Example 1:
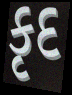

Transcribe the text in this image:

કૃદ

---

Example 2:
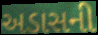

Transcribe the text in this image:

અડાસની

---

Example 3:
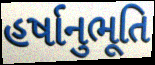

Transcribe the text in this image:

હર્ષાનુભૂતિ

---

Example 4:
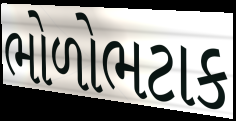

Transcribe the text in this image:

ભોળોભટાક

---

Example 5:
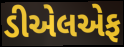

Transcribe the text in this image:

ડીએલએફ